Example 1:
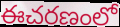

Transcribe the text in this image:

ఈచరణంలో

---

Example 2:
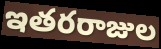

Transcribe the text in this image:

ఇతరరాజుల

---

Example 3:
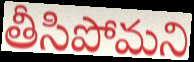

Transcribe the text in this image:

తీసిపోమని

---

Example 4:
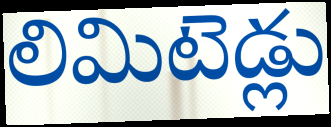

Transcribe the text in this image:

లిమిటెడ్లు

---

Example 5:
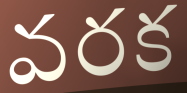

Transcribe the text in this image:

వరక